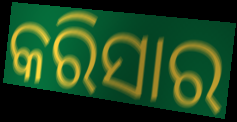
କରିସାର